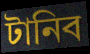
টানিব